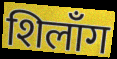
शिलाँग